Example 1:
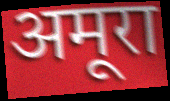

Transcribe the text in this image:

अमूरा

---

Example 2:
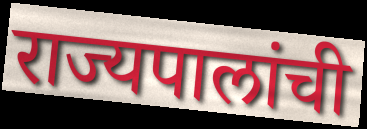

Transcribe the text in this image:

राज्यपालांची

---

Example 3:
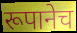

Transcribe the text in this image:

रूपानेच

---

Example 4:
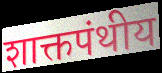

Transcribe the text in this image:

शाक्तपंथीय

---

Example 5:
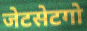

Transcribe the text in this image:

जेटसेटगो